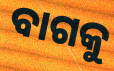
ବାଗକୁ